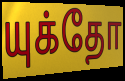
யுக்தோ